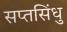
सप्तसिंधु